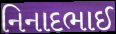
નિનાદભાઈ